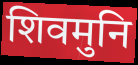
शिवमुनि